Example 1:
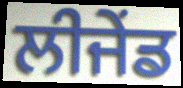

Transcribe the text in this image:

ਲੀਜੇਂਡ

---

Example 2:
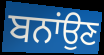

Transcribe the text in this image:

ਬਨਾਂਉਣ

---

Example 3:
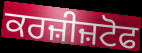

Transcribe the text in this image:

ਕਰਜ਼ੀਜ਼ਟੋਫ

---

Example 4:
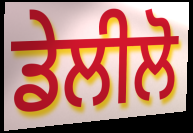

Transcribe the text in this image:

ਡੇਲੀਲੋ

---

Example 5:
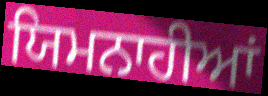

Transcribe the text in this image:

ਯਿਮਨਾਹੀਆਂ